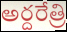
అర్దరేత్రి